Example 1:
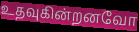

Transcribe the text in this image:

உதவுகின்றனவோ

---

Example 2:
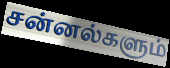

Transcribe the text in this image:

சன்னல்களும்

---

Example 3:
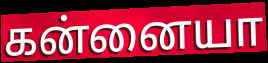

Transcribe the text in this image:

கன்னையா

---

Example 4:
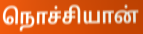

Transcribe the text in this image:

நொச்சியான்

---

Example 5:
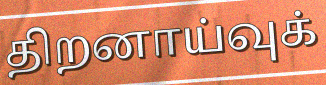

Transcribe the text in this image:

திறனாய்வுக்